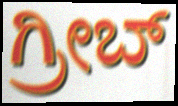
ಗ್ರೀಬ್